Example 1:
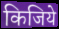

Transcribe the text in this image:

किजिये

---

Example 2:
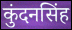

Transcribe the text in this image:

कुंदनसिंह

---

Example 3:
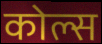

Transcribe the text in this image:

कोल्स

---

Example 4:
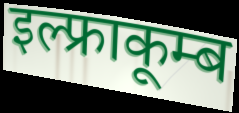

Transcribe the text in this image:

इल्फ्राकूम्ब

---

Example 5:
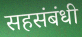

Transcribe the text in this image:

सहसंबंधी